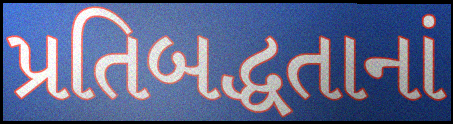
પ્રતિબદ્ધતાનાં